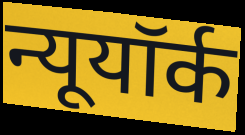
न्यूयॉर्क